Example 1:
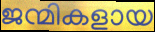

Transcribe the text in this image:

ജന്മികളായ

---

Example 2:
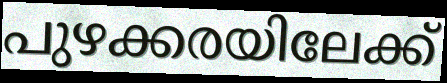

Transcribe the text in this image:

പുഴക്കരയിലേക്ക്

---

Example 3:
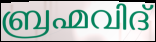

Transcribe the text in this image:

ബ്രഹ്മവിദ്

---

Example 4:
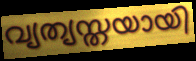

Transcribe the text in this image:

വ്യത്യസ്തയായി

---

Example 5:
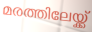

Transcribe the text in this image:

മരത്തിലേയ്ക്ക്